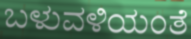
ಬಳುವಳಿಯಂತೆ